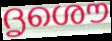
ദൃശൌ